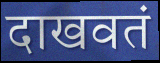
दाखवतं